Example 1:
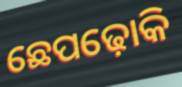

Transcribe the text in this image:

ଛେପଢ଼ୋକି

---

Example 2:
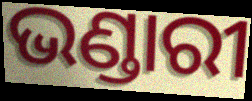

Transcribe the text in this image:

ଭଣ୍ଡାରୀ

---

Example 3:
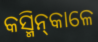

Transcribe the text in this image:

କସ୍ମିନ୍‍କାଳେ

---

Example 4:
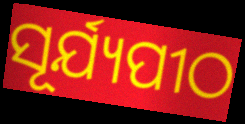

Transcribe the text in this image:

ସୂର୍ଯ୍ୟପୀଠ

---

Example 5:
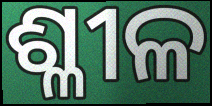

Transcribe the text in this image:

ଶ୍ଳୀଳ